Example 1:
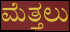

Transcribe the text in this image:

ಮೆತ್ತಲು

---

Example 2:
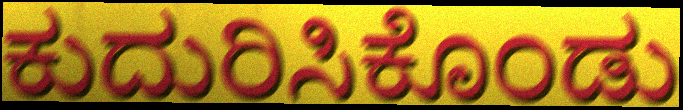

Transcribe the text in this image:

ಕುದುರಿಸಿಕೊಂಡು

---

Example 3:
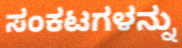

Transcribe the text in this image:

ಸಂಕಟಗಳನ್ನು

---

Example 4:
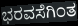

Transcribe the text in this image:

ಭರವಸೆಗಿಂತ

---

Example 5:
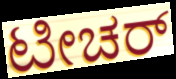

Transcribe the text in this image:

ಟೀಚರ್